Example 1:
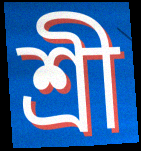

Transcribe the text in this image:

শ্রী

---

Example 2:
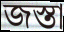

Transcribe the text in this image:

জস্তা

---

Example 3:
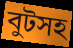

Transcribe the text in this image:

বুটসহ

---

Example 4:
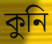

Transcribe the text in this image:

কুনি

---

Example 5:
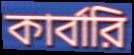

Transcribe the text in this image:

কার্বারি